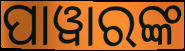
ପାୱାରଙ୍କ